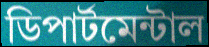
ডিপার্টমেন্টাল